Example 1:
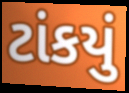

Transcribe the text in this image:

ટાંકયું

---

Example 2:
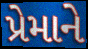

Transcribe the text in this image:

પ્રેમાને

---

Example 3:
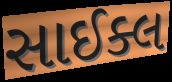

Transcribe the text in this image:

સાઈક્લ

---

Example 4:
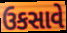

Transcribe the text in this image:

ઉકસાવે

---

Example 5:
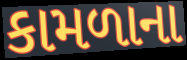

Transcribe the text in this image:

કામળાના